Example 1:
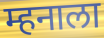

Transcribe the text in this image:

म्हनाला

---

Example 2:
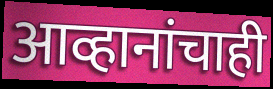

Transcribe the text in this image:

आव्हानांचाही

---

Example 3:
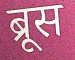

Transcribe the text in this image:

ब्रूस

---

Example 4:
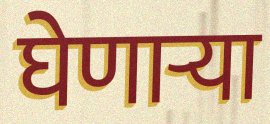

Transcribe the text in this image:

घेणाऱ्या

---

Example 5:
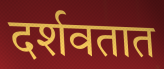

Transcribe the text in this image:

दर्शवतात